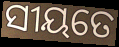
ସୀୟତେ